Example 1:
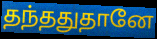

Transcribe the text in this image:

தந்ததுதானே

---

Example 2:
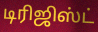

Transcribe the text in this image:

டிரிஜிஸ்ட்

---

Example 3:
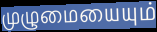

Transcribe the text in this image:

முழுமையையும்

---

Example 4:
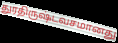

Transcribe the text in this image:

துரதிருஷ்டவசமானது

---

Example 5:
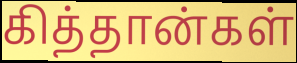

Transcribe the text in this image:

கித்தான்கள்